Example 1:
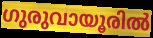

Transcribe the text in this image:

ഗുരുവായൂരിൽ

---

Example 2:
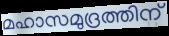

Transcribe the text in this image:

മഹാസമുദ്രത്തിന്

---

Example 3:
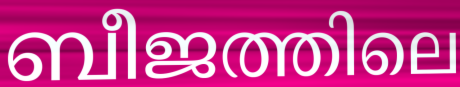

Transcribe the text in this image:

ബീജത്തിലെ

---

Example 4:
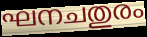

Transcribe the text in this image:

ഘനചതുരം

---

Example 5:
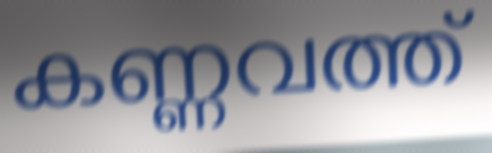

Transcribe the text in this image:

കണ്ണവത്ത്